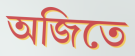
অজিতে